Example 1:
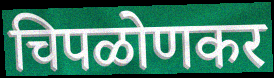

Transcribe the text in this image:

चिपळोणकर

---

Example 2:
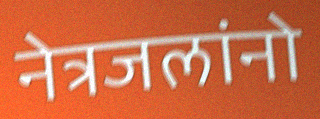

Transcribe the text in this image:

नेत्रजलांनो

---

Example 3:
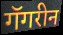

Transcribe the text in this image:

गॅगरीन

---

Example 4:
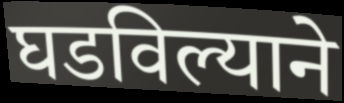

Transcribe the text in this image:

घडविल्याने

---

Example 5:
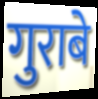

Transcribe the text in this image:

गुराबे